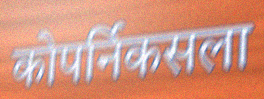
कोपर्निकसला